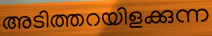
അടിത്തറയിളക്കുന്ന